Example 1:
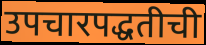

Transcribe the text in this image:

उपचारपद्धतीची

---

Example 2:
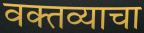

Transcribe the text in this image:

वक्तव्याचा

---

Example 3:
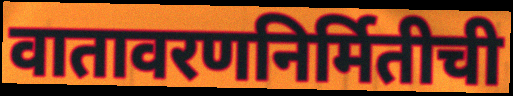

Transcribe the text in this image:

वातावरणनिर्मितीची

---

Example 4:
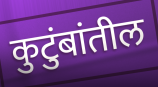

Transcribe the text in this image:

कुटुंबांतील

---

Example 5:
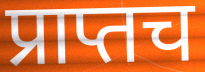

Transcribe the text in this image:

प्राप्तच